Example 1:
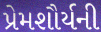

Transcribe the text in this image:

પ્રેમશૌર્યની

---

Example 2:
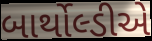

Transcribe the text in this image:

બાર્થોલ્ડીએ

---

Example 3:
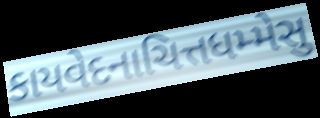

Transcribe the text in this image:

કાયવેદનાચિત્તધમ્મેસુ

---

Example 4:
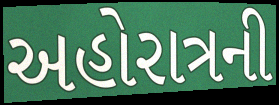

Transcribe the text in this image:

અહોરાત્રની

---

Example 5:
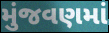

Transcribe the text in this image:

મુંજવણમાં